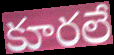
కూరలే